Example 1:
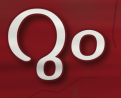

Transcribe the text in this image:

റും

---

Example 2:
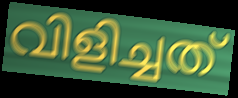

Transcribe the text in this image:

വിളിച്ചത്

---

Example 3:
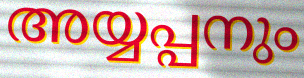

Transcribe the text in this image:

അയ്യപ്പനും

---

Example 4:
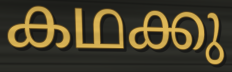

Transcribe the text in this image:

കഥക്കു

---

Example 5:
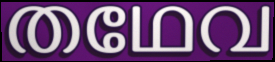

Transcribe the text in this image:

തഥേവ